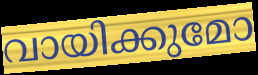
വായിക്കുമോ